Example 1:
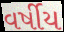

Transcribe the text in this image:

વર્ષીય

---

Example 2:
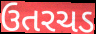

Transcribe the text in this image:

ઉતરચડ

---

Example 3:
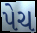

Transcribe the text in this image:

પેચ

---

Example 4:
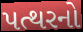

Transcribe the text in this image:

પત્થરનો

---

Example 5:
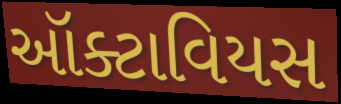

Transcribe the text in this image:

ઑક્ટાવિયસ